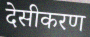
देसीकरण